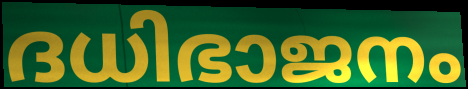
ദധിഭാജനം